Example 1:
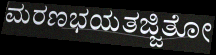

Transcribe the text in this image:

ಮರಣಭಯತಜ್ಜಿತೋ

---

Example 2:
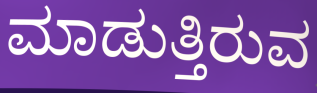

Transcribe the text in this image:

ಮಾಡುತ್ತಿರುವ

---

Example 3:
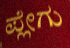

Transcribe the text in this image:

ಪ್ಲೇಗು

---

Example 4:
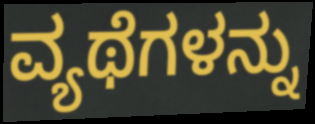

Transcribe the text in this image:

ವ್ಯಥೆಗಳನ್ನು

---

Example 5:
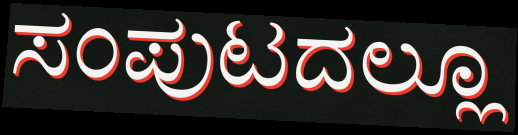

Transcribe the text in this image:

ಸಂಪುಟದಲ್ಲೂ